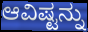
ಆವಿಷ್ಟನ್ನು